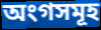
অংগসমূহ